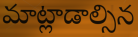
మాట్లాడాల్సిన